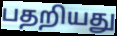
பதறியது